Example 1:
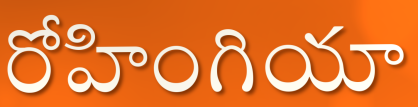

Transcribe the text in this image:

రోహింగియా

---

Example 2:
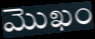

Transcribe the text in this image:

మొఖం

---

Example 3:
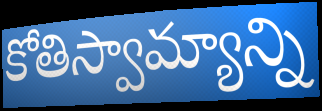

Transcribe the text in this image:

కోతిస్వామ్యాన్ని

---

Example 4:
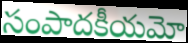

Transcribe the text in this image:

సంపాదకీయమో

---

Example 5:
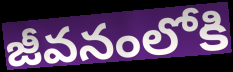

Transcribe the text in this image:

జీవనంలోకి